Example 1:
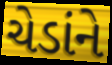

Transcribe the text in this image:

ચેડાંને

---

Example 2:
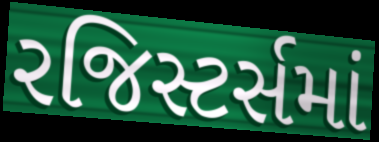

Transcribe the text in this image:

રજિસ્ટર્સમાં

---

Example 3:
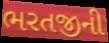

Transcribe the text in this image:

ભરતજીની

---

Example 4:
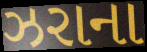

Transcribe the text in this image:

ઝરાના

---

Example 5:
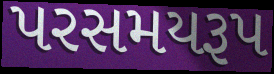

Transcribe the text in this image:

પરસમયરૂપ